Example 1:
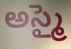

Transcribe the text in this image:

అస్మై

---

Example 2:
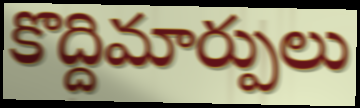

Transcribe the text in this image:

కొద్దిమార్పులు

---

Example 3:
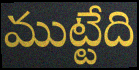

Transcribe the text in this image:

ముట్టేది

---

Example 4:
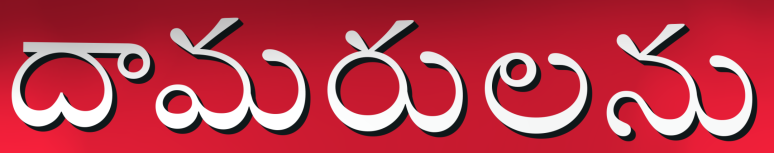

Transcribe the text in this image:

దామరులను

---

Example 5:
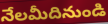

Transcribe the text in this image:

నేలమీదినుండి